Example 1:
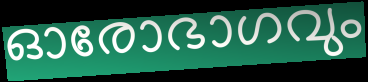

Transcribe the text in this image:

ഓരോഭാഗവും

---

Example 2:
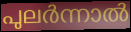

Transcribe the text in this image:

പുലർന്നാൽ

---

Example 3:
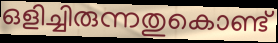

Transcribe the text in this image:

ഒളിച്ചിരുന്നതുകൊണ്ട്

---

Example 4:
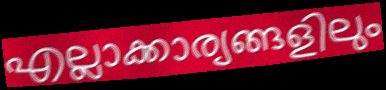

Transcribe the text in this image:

എല്ലാക്കാര്യങ്ങളിലും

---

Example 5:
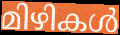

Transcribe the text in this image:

മിഴികൾ